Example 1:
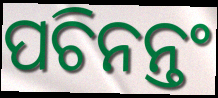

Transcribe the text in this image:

ପଚିନନ୍ତଂ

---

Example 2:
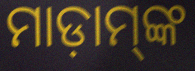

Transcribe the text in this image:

ମାଡ଼ାମ୍‌ଙ୍କ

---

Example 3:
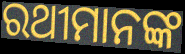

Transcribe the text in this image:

ରଥୀମାନଙ୍କ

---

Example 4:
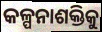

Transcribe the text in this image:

କଳ୍ପନାଶକ୍ତିକୁ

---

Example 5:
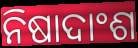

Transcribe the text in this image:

ନିଷାଦାଂଶ